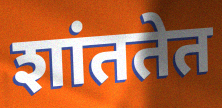
शांततेत